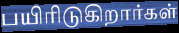
பயிரிடுகிறார்கள்